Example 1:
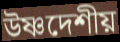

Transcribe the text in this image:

উষ্ণদেশীয়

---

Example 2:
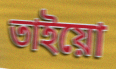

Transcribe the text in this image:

তাইয়ো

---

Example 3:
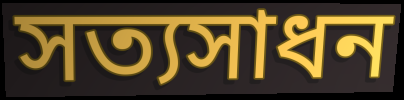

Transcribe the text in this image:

সত্যসাধন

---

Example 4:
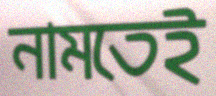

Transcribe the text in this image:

নামতেই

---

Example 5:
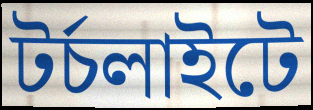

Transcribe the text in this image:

টর্চলাইটে